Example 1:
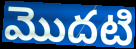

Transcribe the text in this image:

మొదటి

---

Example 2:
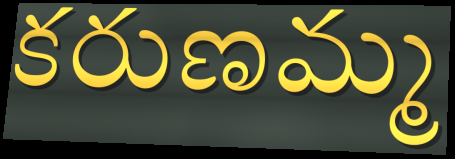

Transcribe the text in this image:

కరుణమ్మ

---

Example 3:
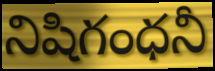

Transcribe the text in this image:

నిషిగంధనీ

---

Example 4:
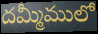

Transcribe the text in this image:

దమ్మీములో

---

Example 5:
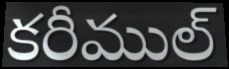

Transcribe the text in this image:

కరీముల్